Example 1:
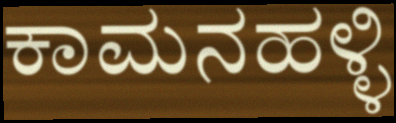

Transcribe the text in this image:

ಕಾಮನಹಳ್ಳಿ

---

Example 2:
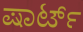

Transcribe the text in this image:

ಷಾರ್ಟ್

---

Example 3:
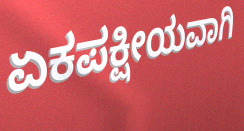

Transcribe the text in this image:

ಏಕಪಕ್ಷೀಯವಾಗಿ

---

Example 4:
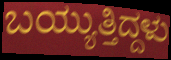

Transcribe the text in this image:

ಬಯ್ಯುತ್ತಿದ್ದಳು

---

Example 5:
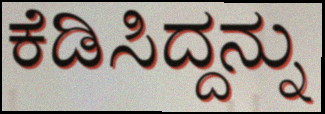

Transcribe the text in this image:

ಕೆಡಿಸಿದ್ದನ್ನು